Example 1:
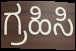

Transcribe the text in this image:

ಗ್ರಹಿಸಿ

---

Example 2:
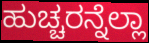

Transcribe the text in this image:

ಹುಚ್ಚರನ್ನೆಲ್ಲಾ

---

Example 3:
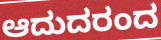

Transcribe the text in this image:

ಆದುದರಂದ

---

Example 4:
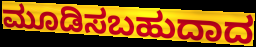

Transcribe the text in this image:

ಮೂಡಿಸಬಹುದಾದ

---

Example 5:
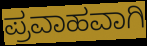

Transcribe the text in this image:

ಪ್ರವಾಹವಾಗಿ